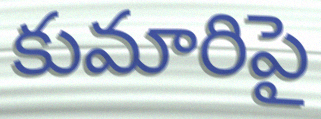
కుమారిపై